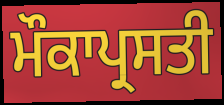
ਮੌਕਾਪ੍ਰਸਤੀ